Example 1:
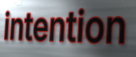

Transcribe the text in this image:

intention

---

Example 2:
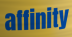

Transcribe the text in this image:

affinity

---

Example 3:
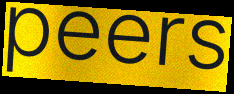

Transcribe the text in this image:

peers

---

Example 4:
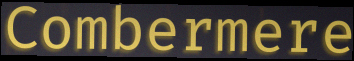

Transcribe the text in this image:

Combermere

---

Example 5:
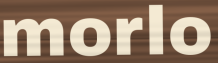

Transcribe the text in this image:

morlo